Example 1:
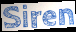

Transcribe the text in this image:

Siren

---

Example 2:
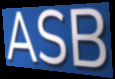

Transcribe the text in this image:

ASB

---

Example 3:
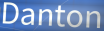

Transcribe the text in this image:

Danton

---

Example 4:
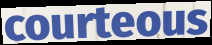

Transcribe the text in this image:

courteous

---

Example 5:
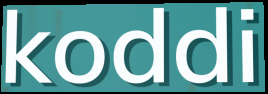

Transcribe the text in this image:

koddi